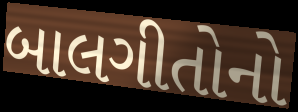
બાલગીતોનો